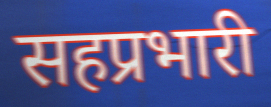
सहप्रभारी